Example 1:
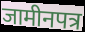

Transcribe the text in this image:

जामीनपत्र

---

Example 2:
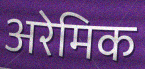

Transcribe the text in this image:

अरेमिक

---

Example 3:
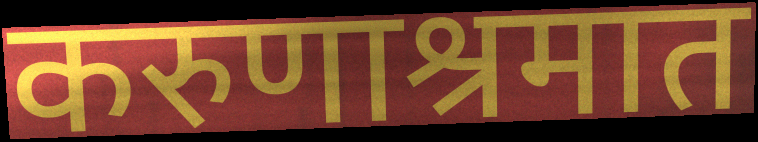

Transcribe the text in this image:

करुणाश्रमात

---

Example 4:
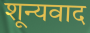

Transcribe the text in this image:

शून्यवाद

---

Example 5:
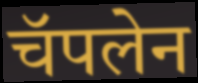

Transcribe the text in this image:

चॅपलेन